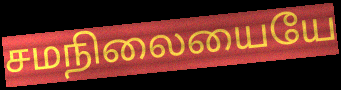
சமநிலையையே